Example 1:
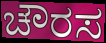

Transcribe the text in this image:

ಚೌರಸ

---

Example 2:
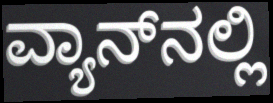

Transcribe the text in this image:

ವ್ಯಾನ್‌ನಲ್ಲಿ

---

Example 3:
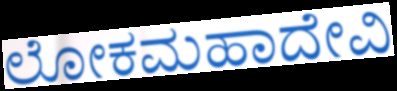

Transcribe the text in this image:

ಲೋಕಮಹಾದೇವಿ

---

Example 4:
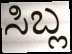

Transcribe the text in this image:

ಸಿಬ್ಲ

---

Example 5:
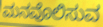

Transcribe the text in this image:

ಮನವೊಲಿಸುವ